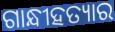
ଗାନ୍ଧୀହତ୍ୟାର